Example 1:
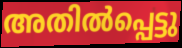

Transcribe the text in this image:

അതിൽപ്പെട്ടു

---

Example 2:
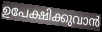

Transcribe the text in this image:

ഉപേക്ഷിക്കുവാൻ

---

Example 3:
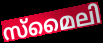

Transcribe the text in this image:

സ്മൈലി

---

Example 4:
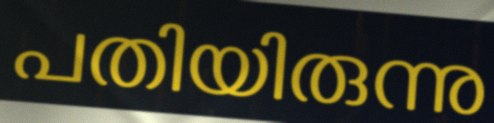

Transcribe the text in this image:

പതിയിരുന്നു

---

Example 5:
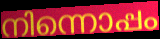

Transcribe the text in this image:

നിന്നൊപ്പം